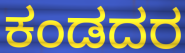
ಕಂಡದರ